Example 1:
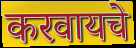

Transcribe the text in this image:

करवायचे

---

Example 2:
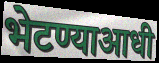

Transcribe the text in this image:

भेटण्याआधी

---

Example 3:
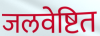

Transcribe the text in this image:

जलवेष्टित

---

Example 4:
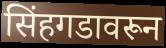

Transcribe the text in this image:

सिंहगडावरून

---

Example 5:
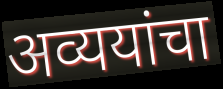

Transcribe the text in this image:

अव्ययांचा